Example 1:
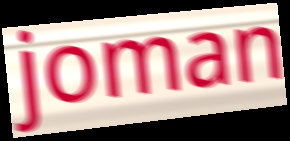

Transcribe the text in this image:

joman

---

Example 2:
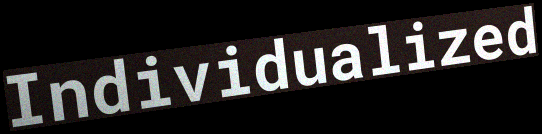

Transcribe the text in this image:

Individualized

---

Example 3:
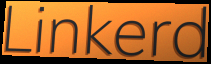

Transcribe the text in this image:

Linkerd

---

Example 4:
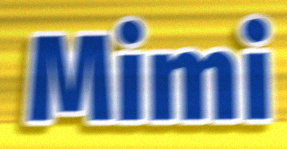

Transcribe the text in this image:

Mimi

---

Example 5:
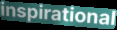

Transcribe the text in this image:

inspirational